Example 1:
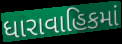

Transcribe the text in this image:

ધારાવાહિકમાં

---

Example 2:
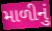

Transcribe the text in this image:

માળીનું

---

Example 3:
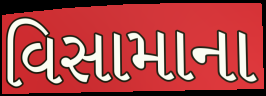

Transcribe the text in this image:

વિસામાના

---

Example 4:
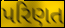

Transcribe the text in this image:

પરિણત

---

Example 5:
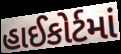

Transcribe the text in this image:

હાઈકોર્ટમાં